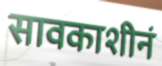
सावकाशीनं